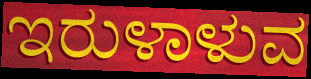
ಇರುಳಾಳುವ